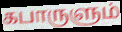
கபாருளும்